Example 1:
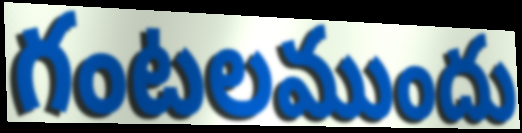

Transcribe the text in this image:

గంటలముందు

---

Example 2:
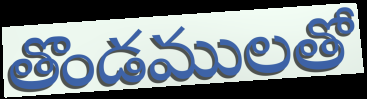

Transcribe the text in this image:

తొండములతో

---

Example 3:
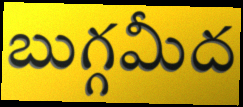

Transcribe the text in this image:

బుగ్గమీద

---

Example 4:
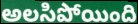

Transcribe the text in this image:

అలసిపోయింది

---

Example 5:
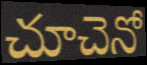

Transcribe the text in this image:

చూచెనో